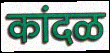
कांदळ